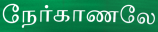
நேர்காணலே